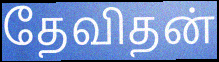
தேவிதன்